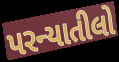
પરન્યાતીલો